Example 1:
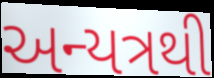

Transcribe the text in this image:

અન્યત્રથી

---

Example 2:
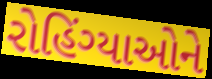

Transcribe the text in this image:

રોહિંગ્યાઓને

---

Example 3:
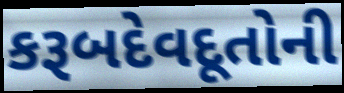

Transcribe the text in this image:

કરૂબદેવદૂતોની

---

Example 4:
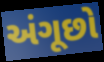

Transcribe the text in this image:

અંગૂછો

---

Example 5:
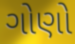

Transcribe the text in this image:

ગોણો